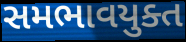
સમભાવયુક્ત